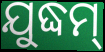
ଯୁଦ୍ଧମ୍